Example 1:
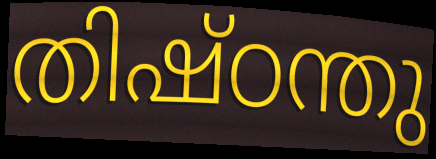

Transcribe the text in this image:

തിഷ്ഠന്തു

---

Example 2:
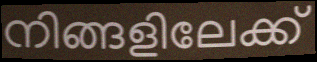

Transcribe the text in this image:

നിങ്ങളിലേക്ക്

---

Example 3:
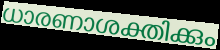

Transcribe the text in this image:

ധാരണാശക്തിക്കും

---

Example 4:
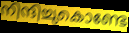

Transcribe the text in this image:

നിന്ദിച്ചുകൊണ്ടേ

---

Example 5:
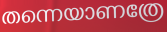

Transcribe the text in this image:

തന്നെയാണത്രേ